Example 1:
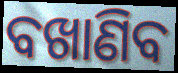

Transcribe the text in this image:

ବଖାଣିବ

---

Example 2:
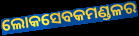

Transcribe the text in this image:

ଲୋକସେବକମଣ୍ଡଳର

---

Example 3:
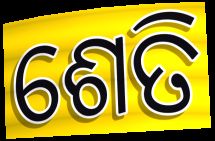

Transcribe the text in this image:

ଶେତି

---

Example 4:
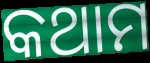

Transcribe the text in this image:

କଥାମ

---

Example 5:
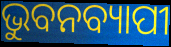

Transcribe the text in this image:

ଭୁବନବ୍ୟାପୀ